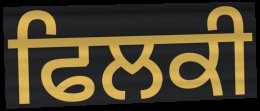
ਫਿਲਕੀ